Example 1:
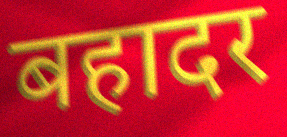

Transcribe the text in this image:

बहादर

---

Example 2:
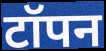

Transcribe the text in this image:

टॉपन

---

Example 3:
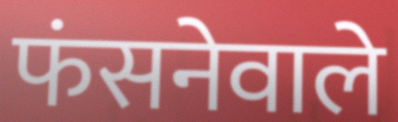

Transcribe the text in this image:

फंसनेवाले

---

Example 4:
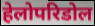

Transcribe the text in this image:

हेलोपरिडोल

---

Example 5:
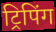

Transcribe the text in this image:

ट्रिपिंग